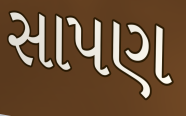
સાપણ